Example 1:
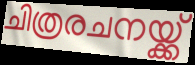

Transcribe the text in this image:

ചിത്രരചനയ്ക്ക്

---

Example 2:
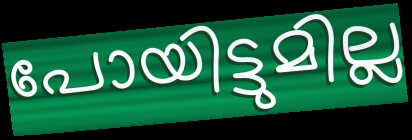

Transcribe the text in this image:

പോയിട്ടുമില്ല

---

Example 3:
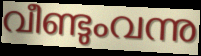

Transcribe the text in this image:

വീണ്ടുംവന്നു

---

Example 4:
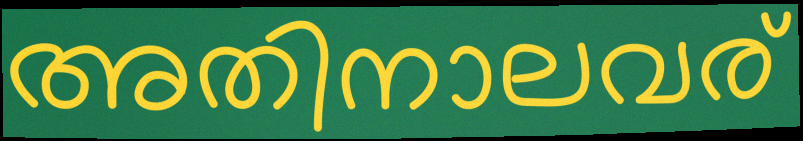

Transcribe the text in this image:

അതിനാലവര്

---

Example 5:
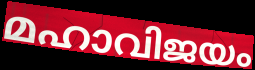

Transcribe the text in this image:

മഹാവിജയം